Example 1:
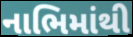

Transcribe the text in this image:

નાભિમાંથી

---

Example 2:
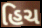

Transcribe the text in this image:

હિચ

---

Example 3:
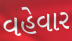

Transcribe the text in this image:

વહેવાર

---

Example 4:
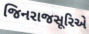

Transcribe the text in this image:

જિનરાજસૂરિએ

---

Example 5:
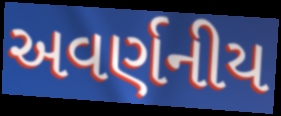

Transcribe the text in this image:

અવર્ણનીય